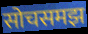
सोचसमझ